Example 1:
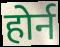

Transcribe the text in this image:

होर्न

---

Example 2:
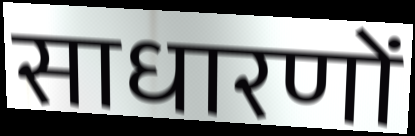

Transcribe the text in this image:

साधारणों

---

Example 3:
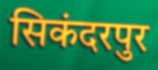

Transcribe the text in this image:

सिकंदरपुर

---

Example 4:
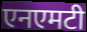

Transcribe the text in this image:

एनएमटी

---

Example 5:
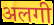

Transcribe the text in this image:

अलगी